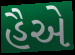
હૈએ